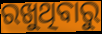
ରଖୁଥିବାରୁ